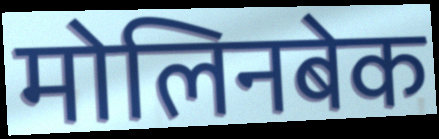
मोलिनबेक